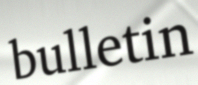
bulletin